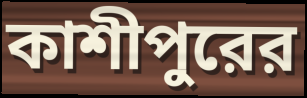
কাশীপুরের